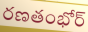
రణతంభోర్